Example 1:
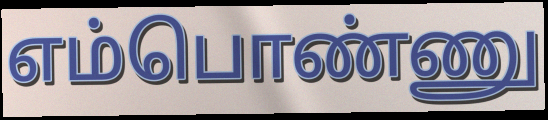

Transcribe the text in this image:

எம்பொண்ணு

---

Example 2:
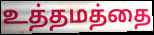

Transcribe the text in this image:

உத்தமத்தை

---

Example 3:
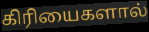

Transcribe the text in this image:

கிரியைகளால்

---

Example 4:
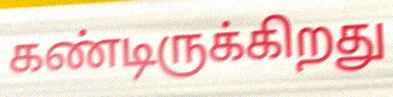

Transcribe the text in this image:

கண்டிருக்கிறது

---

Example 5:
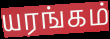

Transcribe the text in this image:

யரங்கம்